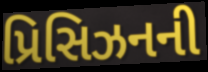
પ્રિસિઝનની